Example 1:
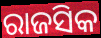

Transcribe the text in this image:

ରାଜସିକ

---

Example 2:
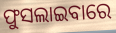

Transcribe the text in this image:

ଫୁସଲାଇବାରେ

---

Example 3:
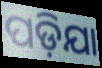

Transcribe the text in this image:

ପଡ଼ିଯା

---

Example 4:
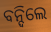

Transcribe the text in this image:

ବନ୍ଦିଲେ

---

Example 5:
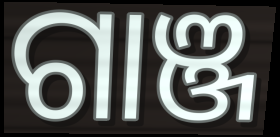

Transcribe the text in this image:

ଗାଞ୍ଜ